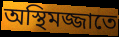
অস্থিমজ্জাতে